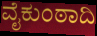
ವೈಕುಂಠಾದಿ